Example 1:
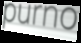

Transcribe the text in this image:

purno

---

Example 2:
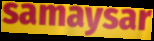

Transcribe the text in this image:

samaysar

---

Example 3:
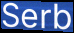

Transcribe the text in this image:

Serb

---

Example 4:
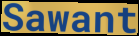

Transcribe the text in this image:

Sawant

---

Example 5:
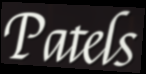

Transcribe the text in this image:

Patels